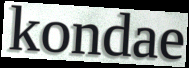
kondae